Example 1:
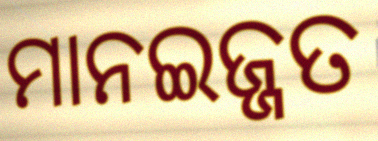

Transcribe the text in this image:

ମାନଇଜ୍ଜତ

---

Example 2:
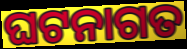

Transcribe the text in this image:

ଘଟନାଗତ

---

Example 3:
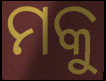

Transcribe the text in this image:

ମକୁ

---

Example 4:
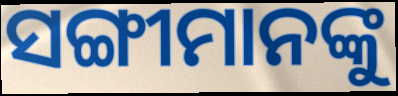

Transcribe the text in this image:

ସଙ୍ଗୀମାନଙ୍କୁ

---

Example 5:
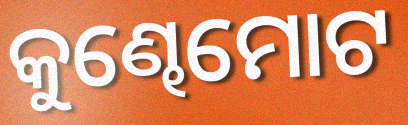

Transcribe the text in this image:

କୁଣ୍ଢେମୋଟ